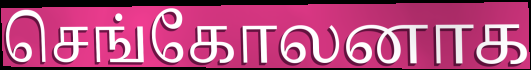
செங்கோலனாக